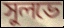
সুলভে